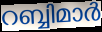
റബ്ബിമാർ